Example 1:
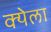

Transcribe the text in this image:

क्येला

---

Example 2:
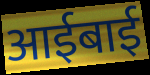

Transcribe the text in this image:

आईबाई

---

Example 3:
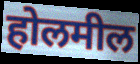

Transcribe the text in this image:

होलमील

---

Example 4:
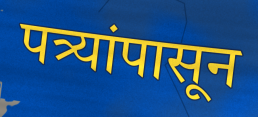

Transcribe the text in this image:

पत्र्यांपासून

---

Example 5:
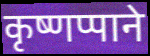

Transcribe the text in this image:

कृष्णप्पाने